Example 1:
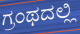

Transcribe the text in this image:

ಗ್ರಂಥದಲ್ಲಿ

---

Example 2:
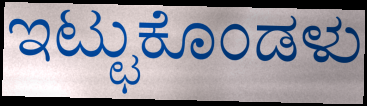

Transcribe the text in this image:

ಇಟ್ಟುಕೊಂಡಳು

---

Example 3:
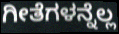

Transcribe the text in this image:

ಗೀತೆಗಳನ್ನೆಲ್ಲ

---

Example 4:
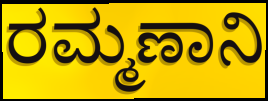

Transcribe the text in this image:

ರಮ್ಮಣಾನಿ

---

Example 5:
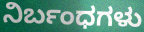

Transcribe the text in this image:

ನಿರ್ಬಂಧಗಳು